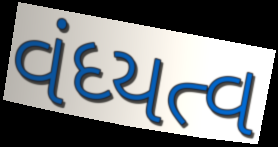
વંધ્યત્વ